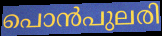
പൊൻപുലരി